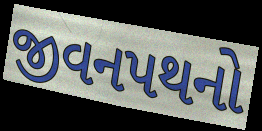
જીવનપથનો